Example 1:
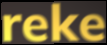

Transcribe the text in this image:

reke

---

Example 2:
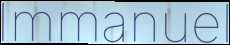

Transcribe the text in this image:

Immanuel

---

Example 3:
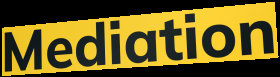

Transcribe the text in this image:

Mediation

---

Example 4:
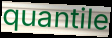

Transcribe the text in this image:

quantile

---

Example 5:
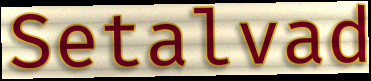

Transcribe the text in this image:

Setalvad